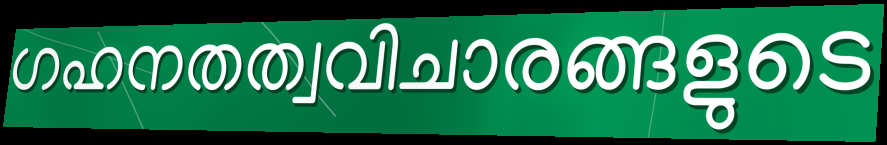
ഗഹനതത്വവിചാരങ്ങളുടെ